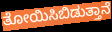
ತೋಯಿಸಿಬಿಡುತ್ತಾನೆ